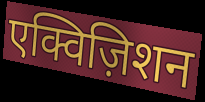
एक्विज़िशन